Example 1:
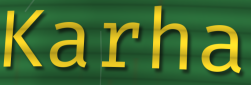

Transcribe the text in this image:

Karha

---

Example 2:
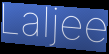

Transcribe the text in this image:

Laljee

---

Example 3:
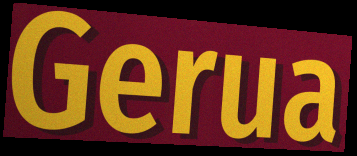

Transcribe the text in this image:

Gerua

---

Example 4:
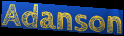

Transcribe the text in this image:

Adanson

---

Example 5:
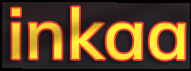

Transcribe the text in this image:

inkaa